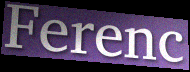
Ferenc